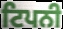
ਟਿਪਨੀ